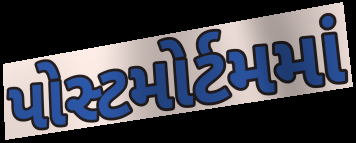
પોસ્ટમોર્ટમમાં